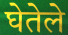
घेतेले